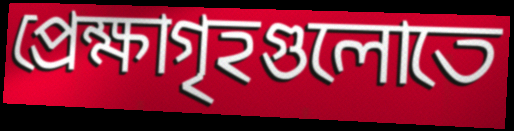
প্রেক্ষাগৃহগুলোতে